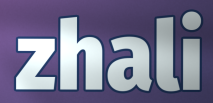
zhali